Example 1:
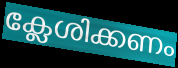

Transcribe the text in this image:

ക്ലേശിക്കണം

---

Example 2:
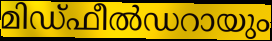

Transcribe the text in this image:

മിഡ്ഫീൽഡറായും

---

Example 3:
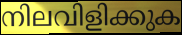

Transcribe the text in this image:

നിലവിളിക്കുക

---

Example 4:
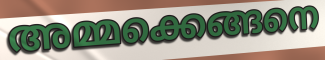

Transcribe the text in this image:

അമ്മക്കെങ്ങനെ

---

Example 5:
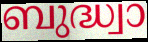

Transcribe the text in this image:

ബുദ്ധ്വാ